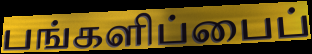
பங்களிப்பைப்